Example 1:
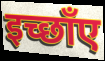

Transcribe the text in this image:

इच्छाँए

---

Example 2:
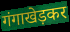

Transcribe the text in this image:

गंगाखेड़कर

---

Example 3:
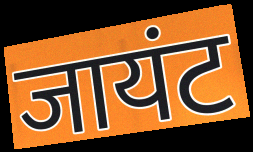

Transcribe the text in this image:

जायंट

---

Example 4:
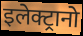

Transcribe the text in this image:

इलेक्ट्रानो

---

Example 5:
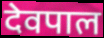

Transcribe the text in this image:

देवपाल